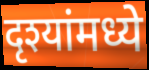
दृश्यांमध्ये